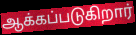
ஆக்கப்படுகிறார்